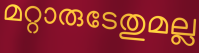
മറ്റാരുടേതുമല്ല